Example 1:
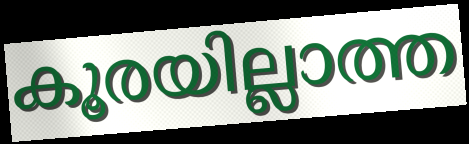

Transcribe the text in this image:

കൂരയില്ലാത്ത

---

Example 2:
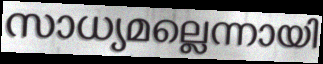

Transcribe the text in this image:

സാധ്യമല്ലെന്നായി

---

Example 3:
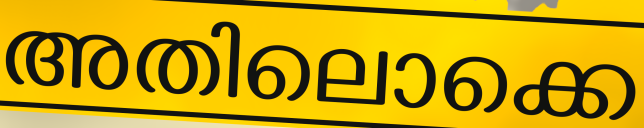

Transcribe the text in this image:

അതിലൊക്കെ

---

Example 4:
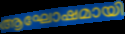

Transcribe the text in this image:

ആഘോഷമായി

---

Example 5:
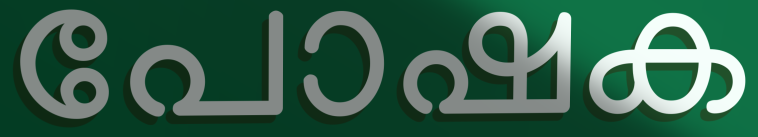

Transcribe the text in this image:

പോഷക